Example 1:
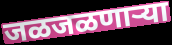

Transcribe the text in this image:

जळजळणाऱ्या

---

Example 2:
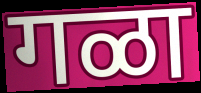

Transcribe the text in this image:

गळा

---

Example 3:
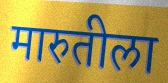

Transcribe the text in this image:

मारुतीला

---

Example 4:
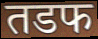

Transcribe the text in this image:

तडफ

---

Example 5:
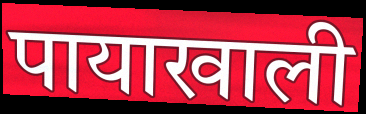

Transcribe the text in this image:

पायाखाली